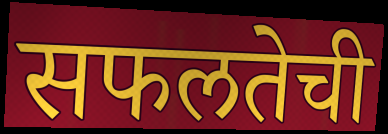
सफलतेची